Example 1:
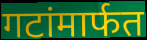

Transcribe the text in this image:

गटांमार्फत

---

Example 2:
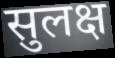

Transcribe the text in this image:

सुलक्ष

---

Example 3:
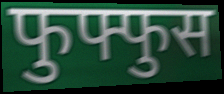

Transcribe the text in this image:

फुफ्फुस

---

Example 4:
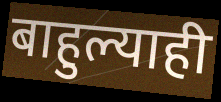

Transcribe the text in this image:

बाहुल्याही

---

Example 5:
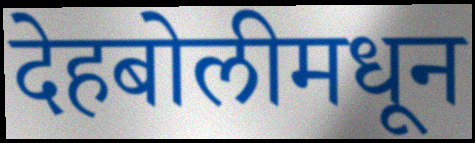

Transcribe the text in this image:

देहबोलीमधून